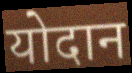
योदान